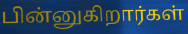
பின்னுகிறார்கள்